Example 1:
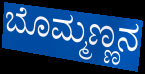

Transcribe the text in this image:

ಬೊಮ್ಮಣ್ಣನ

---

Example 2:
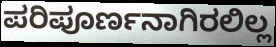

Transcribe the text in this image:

ಪರಿಪೂರ್ಣನಾಗಿರಲಿಲ್ಲ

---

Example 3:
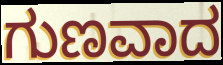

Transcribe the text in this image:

ಗುಣವಾದ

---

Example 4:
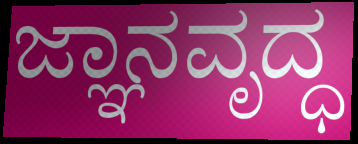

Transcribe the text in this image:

ಜ್ಞಾನವೃದ್ಧ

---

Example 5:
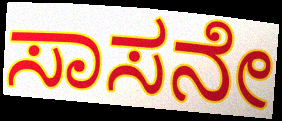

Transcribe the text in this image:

ಸಾಸನೇ